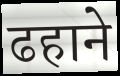
ढहाने